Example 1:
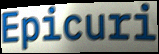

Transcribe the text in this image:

Epicuri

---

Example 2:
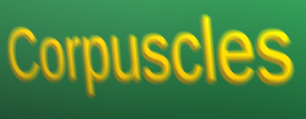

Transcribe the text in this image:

Corpuscles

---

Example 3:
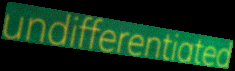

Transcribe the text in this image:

undifferentiated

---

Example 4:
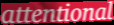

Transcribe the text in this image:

attentional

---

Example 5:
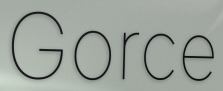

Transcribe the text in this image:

Gorce